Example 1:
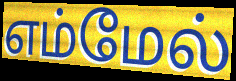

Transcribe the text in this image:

எம்மேல்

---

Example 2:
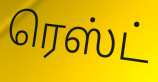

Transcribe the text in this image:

ரெஸ்ட்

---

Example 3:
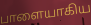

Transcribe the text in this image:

பாளையாகிய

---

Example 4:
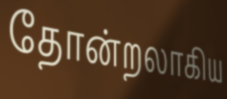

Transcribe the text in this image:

தோன்றலாகிய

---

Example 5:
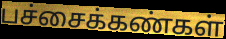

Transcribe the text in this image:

பச்சைக்கண்கள்